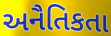
અનૈતિકતા